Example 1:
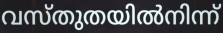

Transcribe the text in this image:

വസ്തുതയിൽനിന്ന്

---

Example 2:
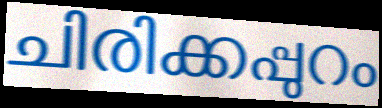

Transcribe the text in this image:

ചിരിക്കപ്പുറം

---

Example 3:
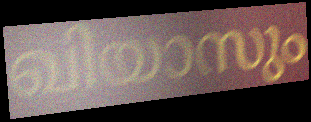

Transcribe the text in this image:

ഖിയാസും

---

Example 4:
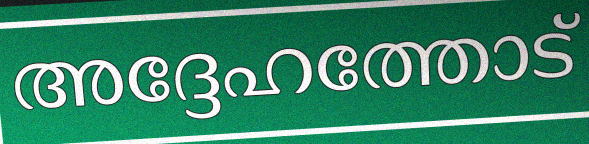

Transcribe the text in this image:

അദ്ദേഹത്തോട്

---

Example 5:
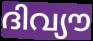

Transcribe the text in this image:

ദിവ്യൗ